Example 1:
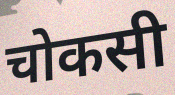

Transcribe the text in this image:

चोकसी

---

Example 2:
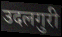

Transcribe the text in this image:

उदलगुरी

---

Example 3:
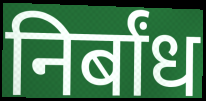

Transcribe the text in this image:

निर्बांध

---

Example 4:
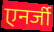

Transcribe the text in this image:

एनर्जी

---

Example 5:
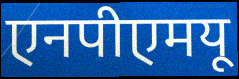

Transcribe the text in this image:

एनपीएमयू